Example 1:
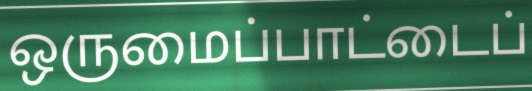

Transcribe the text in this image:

ஒருமைப்பாட்டைப்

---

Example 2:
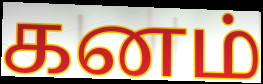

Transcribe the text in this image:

கனம்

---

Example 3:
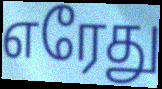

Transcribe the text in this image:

எரேது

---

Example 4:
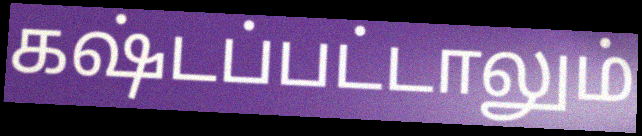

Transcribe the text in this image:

கஷ்டப்பட்டாலும்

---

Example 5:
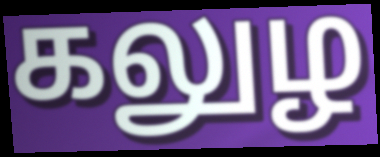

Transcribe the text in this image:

கலுழ